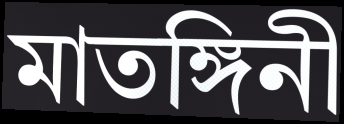
মাতঙ্গিনী